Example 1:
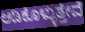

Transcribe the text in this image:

ಆಡಿಕೊಳ್ಳುತ್ತೇವೆ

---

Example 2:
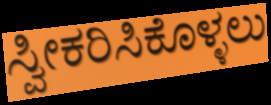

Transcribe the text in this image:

ಸ್ವೀಕರಿಸಿಕೊಳ್ಳಲು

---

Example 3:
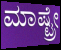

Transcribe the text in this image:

ಮಾಷ್ಟ್ರೇ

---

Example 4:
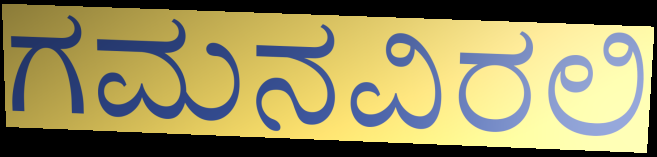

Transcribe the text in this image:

ಗಮನವಿರಲಿ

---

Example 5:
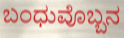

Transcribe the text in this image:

ಬಂಧುವೊಬ್ಬನ